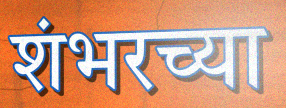
शंभरच्या